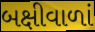
બક્ષીવાળાં